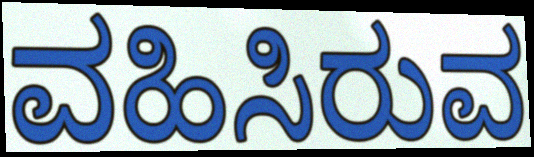
ವಹಿಸಿರುವ